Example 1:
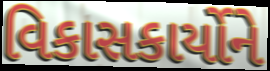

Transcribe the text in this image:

વિકાસકાર્યોને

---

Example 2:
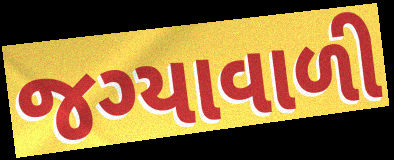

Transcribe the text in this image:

જગ્યાવાળી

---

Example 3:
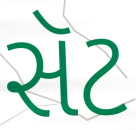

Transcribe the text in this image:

સૅટ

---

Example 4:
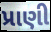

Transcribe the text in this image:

પ્રાણી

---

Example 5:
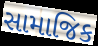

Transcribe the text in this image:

સામાજિક